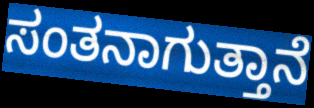
ಸಂತನಾಗುತ್ತಾನೆ